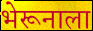
भेरूनाला